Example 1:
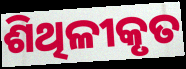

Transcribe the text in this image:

ଶିଥିଳୀକୃତ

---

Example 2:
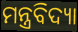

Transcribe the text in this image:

ମନ୍ତ୍ରବିଦ୍ୟା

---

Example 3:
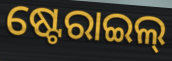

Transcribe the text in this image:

ଷ୍ଟେରାଇଲ୍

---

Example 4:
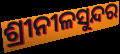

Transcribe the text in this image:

ଶ୍ରୀନୀଳସୁନ୍ଦର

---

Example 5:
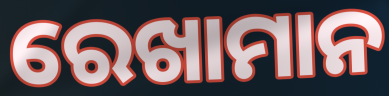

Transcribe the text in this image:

ରେଖାମାନ